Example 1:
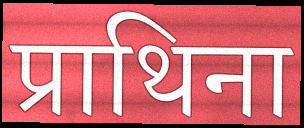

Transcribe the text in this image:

प्राथिना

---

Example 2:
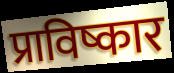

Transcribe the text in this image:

प्राविष्कार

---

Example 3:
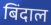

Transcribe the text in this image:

बिंदाल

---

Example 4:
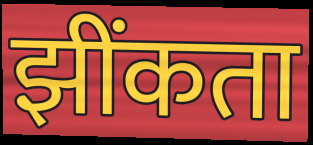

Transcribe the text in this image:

झींकता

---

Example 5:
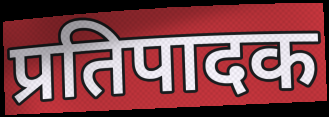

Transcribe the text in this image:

प्रतिपादक